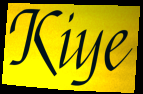
Kiye